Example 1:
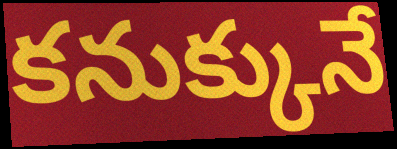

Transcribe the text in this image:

కనుక్కునే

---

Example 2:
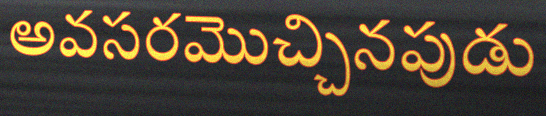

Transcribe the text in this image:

అవసరమొచ్చినపుడు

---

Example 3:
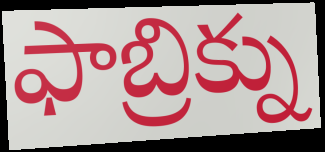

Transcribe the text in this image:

ఫాబ్రిక్ను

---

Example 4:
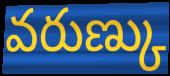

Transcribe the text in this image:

వరుణ్కు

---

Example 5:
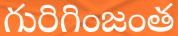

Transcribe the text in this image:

గురిగింజంత